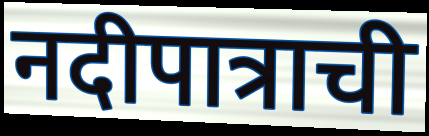
नदीपात्राची